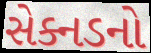
સેક્નડનો